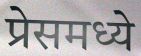
प्रेसमध्ये